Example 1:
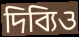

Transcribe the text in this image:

দিব্যিও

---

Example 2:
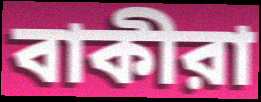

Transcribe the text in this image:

বাকীরা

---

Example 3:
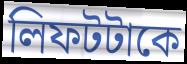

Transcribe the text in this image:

লিফটটাকে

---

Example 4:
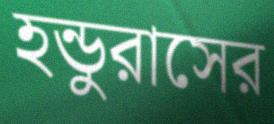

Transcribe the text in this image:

হন্ডুরাসের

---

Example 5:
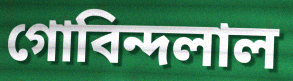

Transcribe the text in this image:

গোবিন্দলাল